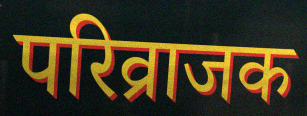
परिव्राजक